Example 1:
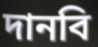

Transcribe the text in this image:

দানবি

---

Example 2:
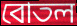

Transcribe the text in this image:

বোতল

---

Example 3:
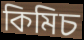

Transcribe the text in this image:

কিমিচ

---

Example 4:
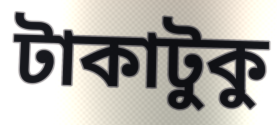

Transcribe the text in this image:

টাকাটুকু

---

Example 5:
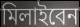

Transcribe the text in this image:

মিলাইবেন